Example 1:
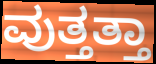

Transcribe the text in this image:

ವುತ್ತತ್ತಾ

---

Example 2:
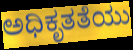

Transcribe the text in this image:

ಅಧಿಕೃತತೆಯು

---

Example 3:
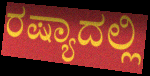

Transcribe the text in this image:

ರಷ್ಯಾದಲ್ಲಿ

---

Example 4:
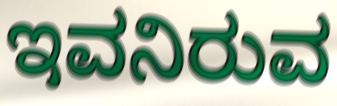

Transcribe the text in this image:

ಇವನಿರುವ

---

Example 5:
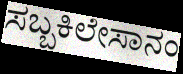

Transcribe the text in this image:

ಸಬ್ಬಕಿಲೇಸಾನಂ